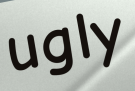
ugly